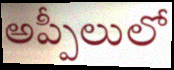
అప్పీలులో